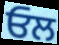
ਓਲ